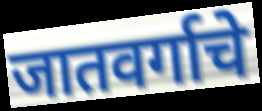
जातवर्गाचे